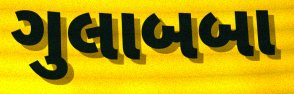
ગુલાબબા